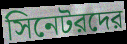
সিনেটরদের